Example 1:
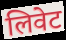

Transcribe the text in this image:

लिवेट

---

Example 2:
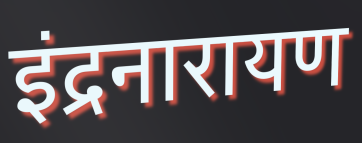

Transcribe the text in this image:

इंद्रनारायण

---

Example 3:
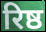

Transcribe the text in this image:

रिष्ठ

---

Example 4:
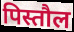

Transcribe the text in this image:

पिस्तौल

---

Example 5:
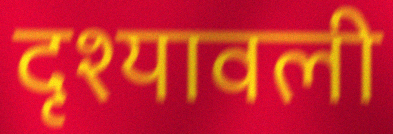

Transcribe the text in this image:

दृश्यावली